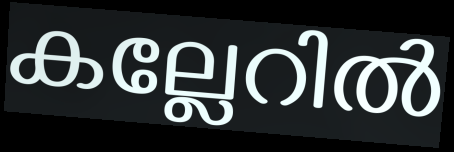
കല്ലേറിൽ